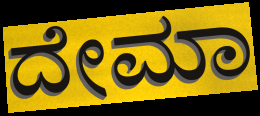
ದೇಮಾ